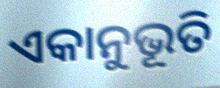
ଏକାନୁଭୂତି